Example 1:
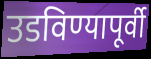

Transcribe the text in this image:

उडविण्यापूर्वी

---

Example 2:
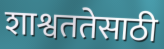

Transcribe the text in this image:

शाश्वततेसाठी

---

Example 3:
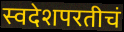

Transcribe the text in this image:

स्वदेशपरतीचं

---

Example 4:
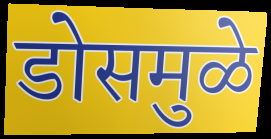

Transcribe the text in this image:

डोसमुळे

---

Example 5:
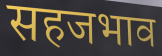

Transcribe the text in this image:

सहजभाव